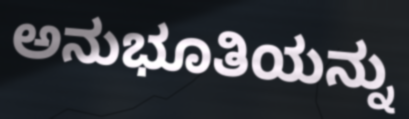
ಅನುಭೂತಿಯನ್ನು